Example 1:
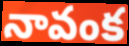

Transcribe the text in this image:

నావంక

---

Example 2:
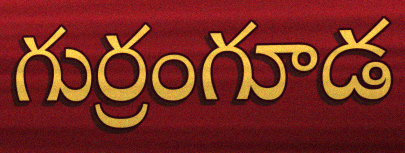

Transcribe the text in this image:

గుర్రంగూడ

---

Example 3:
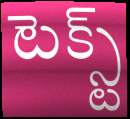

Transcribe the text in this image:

టెక్స్ట్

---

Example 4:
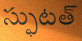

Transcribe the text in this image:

స్ఫుటత్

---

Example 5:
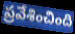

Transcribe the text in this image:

ప్రవేశించింది